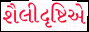
શૈલીદૃષ્ટિએ